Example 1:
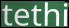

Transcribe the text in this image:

tethi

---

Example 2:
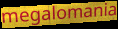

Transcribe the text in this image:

megalomania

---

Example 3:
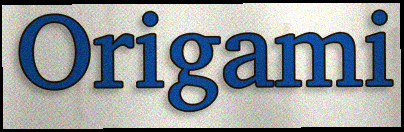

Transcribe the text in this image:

Origami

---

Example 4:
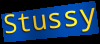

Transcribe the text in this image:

Stussy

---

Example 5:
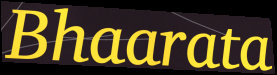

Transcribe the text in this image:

Bhaarata